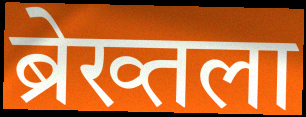
ब्रेख्तला